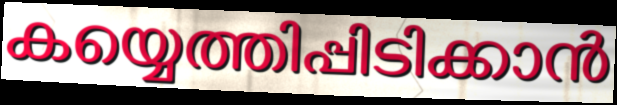
കയ്യെത്തിപ്പിടിക്കാൻ